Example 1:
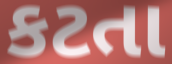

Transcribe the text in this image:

કટતા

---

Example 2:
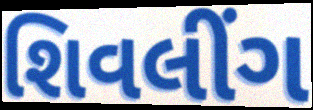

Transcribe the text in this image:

શિવલીંગ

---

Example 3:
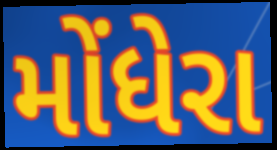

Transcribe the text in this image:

મોંધેરા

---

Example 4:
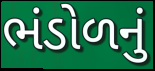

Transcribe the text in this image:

ભંડોળનું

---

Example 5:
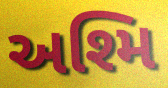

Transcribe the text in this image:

અશ્મિ